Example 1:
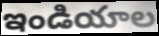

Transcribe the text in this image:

ఇండియాల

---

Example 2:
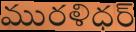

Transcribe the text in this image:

మురళిధర్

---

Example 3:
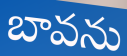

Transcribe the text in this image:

బావను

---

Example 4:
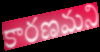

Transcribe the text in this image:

కారణమని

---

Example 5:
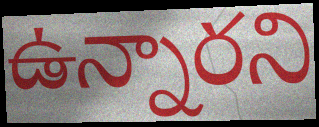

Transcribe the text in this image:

ఉన్నారని